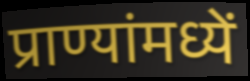
प्राण्यांमध्यें